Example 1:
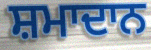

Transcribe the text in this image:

ਸ਼ਮਾਦਾਨ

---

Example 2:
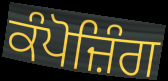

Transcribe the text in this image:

ਕੰਪੋਜ਼ਿੰਗ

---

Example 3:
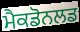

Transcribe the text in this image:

ਮੈਕਡੋਨਲਡ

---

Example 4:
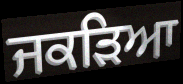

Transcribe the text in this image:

ਜਕੜਿਆ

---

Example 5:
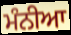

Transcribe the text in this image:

ਮੰਨੀਆ